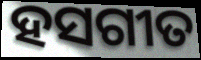
ହସଗୀତ